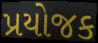
પ્રયોજક